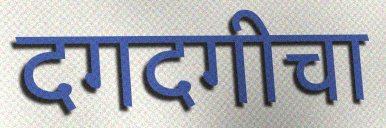
दगदगीचा